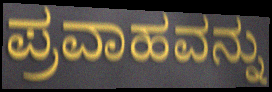
ಪ್ರವಾಹವನ್ನು